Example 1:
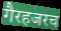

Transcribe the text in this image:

गैरहजरच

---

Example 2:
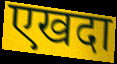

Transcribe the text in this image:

एखदा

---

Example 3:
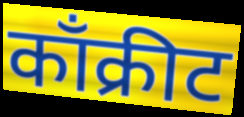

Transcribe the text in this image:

काँक्रीट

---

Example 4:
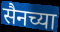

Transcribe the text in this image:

सैनच्या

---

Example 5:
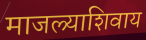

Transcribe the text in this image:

माजल्याशिवाय